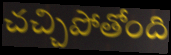
చచ్చిపోతోంది